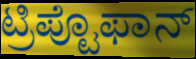
ಟ್ರಿಪ್ಟೊಫಾನ್